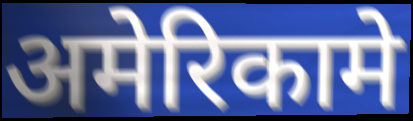
अमेरिकामे